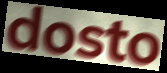
dosto